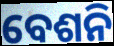
ବେଶନି